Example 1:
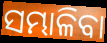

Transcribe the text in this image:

ସମ୍ଭାଳିବା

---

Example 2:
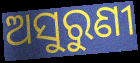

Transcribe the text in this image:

ଅସୁରୁଣୀ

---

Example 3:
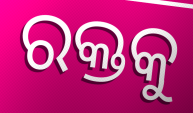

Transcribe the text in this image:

ରକ୍ତକୁ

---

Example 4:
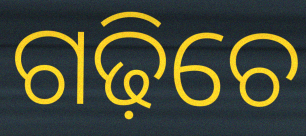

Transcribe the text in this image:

ଗଢ଼ିଚେ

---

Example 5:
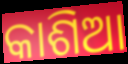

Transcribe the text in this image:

କାଶିଆ